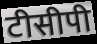
टीसीपी